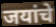
जयांचे